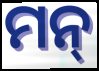
ମନ୍